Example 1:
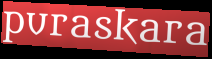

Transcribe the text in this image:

puraskara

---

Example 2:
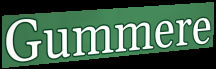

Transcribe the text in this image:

Gummere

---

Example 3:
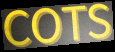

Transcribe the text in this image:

COTS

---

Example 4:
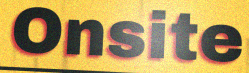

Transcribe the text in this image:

Onsite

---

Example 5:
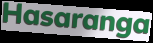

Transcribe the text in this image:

Hasaranga